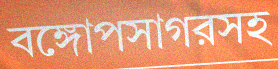
বঙ্গোপসাগরসহ